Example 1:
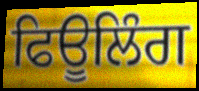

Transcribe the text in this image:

ਫਿਊਲਿੰਗ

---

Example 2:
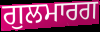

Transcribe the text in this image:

ਗੁਲਮਾਰਗ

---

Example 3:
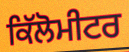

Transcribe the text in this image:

ਕਿੱਲੋਮੀਟਰ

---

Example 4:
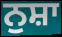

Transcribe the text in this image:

ਨੁਸ਼ਾ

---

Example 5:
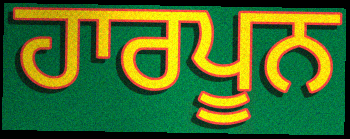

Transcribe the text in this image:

ਹਾਰਪੂਨ